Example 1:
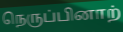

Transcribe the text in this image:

நெருப்பினாற்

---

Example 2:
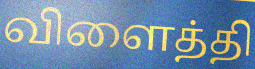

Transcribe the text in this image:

விளைத்தி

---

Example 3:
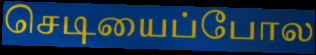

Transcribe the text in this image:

செடியைப்போல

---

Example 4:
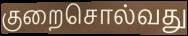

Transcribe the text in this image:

குறைசொல்வது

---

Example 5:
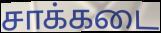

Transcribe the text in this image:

சாக்கடை